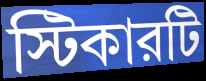
স্টিকারটি